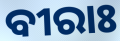
ବୀରାଃ